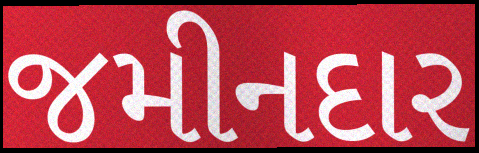
જમીનદાર